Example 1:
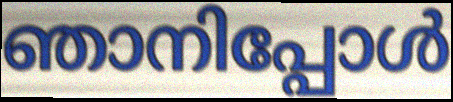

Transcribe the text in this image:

ഞാനിപ്പോൾ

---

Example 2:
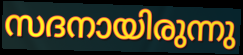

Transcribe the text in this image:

സദനായിരുന്നു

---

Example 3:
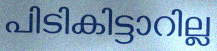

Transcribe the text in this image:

പിടികിട്ടാറില്ല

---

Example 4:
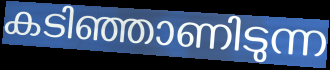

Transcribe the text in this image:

കടിഞ്ഞാണിടുന്ന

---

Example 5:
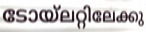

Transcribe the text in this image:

ടോയ്ലറ്റിലേക്കു